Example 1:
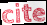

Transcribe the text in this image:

cite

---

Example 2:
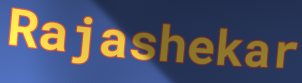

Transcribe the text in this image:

Rajashekar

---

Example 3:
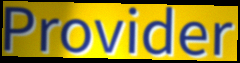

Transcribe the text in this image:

Provider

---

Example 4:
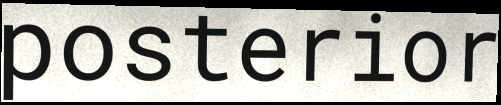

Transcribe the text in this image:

posterior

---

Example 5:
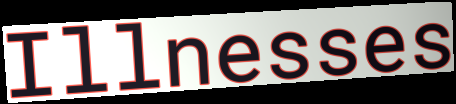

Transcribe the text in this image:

Illnesses